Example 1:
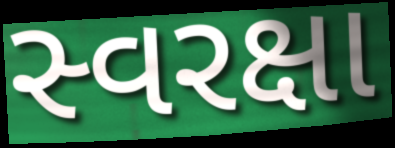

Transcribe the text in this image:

સ્વરક્ષા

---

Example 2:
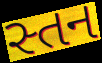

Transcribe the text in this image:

સ્તન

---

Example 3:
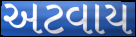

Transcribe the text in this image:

અટવાય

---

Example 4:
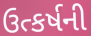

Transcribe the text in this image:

ઉત્કર્ષની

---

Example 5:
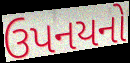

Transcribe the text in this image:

ઉપનયનો